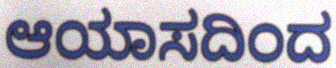
ಆಯಾಸದಿಂದ